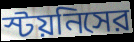
স্টয়নিসের